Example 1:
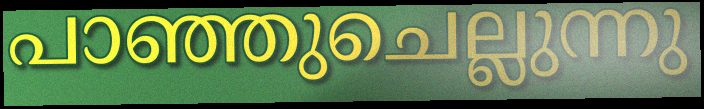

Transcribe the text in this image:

പാഞ്ഞുചെല്ലുന്നു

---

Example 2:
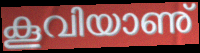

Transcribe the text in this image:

കൂവിയാണു്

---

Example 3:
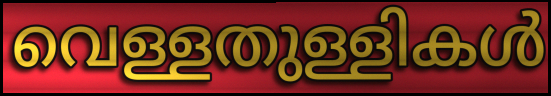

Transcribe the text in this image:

വെള്ളതുള്ളികൾ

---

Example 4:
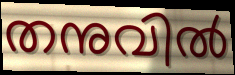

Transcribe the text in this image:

തനുവിൽ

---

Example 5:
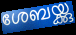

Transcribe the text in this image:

ശേബയ്ക്കു